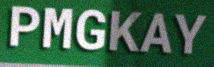
PMGKAY